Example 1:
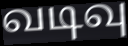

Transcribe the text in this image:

வடிவு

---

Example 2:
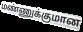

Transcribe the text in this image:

மண்ணுக்குமான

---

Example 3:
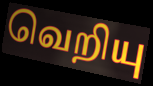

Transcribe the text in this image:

வெறியு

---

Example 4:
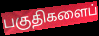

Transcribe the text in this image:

பகுதிகளைப்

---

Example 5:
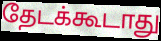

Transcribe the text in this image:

தேடக்கூடாது